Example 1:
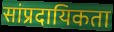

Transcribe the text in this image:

सांप्रदायिकता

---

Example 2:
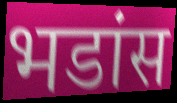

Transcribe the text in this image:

भडांस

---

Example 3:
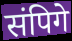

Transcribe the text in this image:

संपिगे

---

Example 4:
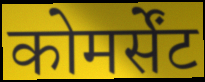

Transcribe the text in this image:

कोमर्सेंट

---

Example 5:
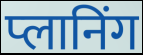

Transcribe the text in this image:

प्‍लानिंग